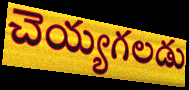
చెయ్యగలడు